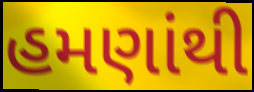
હમણાંથી